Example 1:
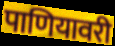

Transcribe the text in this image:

पाणियावरी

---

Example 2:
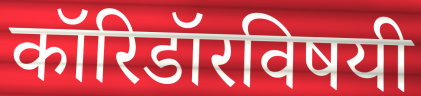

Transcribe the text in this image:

कॉरिडॉरविषयी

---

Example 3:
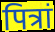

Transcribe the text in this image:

पित्रां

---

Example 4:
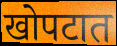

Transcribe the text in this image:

खोपटात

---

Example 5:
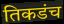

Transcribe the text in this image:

तिकडंच